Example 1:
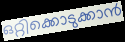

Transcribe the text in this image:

ഒറ്റിക്കൊടുക്കാൻ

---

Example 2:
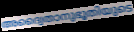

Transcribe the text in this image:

അദ്വൈതാനുഭൂതിയുടെ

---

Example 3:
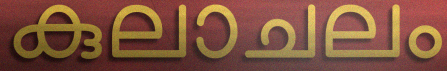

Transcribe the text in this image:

കുലാചലം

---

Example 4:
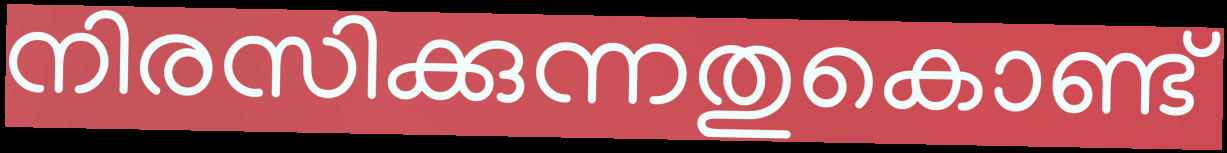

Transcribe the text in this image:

നിരസിക്കുന്നതുകൊണ്ട്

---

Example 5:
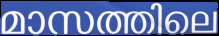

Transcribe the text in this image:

മാസത്തിലെ